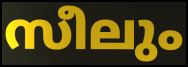
സീലും